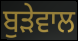
ਬੁੜੇਵਾਲ